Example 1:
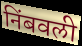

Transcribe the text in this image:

निंबवली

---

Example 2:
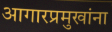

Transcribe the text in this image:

आगारप्रमुखांना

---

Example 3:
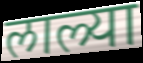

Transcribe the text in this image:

लाल्या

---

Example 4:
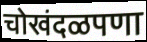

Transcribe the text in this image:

चोखंदळपणा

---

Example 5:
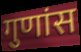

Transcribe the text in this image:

गुणांस